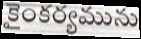
కైంకర్యమును